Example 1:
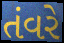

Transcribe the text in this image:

તંવરે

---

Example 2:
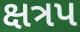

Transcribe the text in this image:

ક્ષત્રપ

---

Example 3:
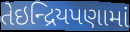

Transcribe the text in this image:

તેઇન્દ્રિયપણામાં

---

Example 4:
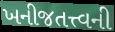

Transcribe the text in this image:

ખનીજતત્ત્વની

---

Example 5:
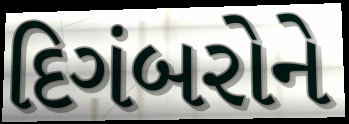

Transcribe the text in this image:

દિગંબરોને